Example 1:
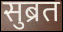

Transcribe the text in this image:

सुब्रत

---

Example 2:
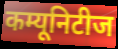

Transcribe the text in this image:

कम्यूनिटीज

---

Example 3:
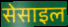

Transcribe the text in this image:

सेसाइल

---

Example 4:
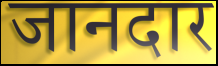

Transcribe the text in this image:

जानदार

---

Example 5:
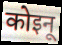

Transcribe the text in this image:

कोइनू